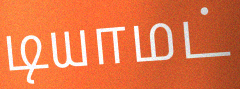
டியாமட்